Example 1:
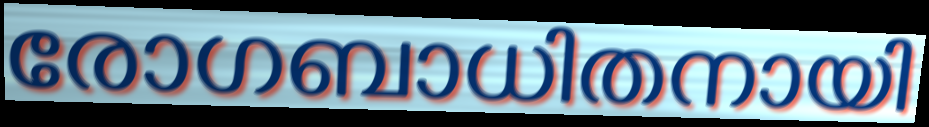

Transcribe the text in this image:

രോഗബാധിതനായി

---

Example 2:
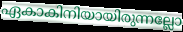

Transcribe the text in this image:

ഏകാകിനിയായിരുന്നല്ലോ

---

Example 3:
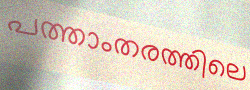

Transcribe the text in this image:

പത്താംതരത്തിലെ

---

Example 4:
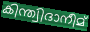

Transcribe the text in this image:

കിന്ത്വിദാനീമ്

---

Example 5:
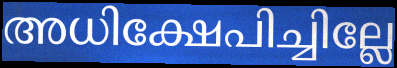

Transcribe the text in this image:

അധിക്ഷേപിച്ചില്ലേ